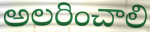
అలరించాలి